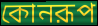
কোনরূপ